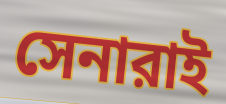
সেনারাই